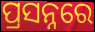
ପ୍ରସନ୍ନରେ